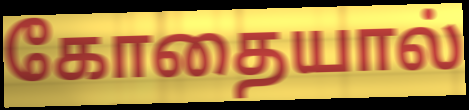
கோதையால்